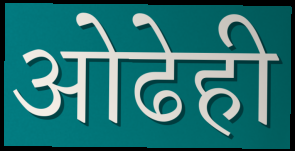
ओढेही